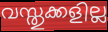
വസ്തുക്കളില്ല